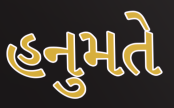
હનુમતે